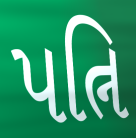
પત્નિ